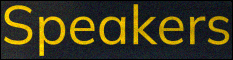
Speakers